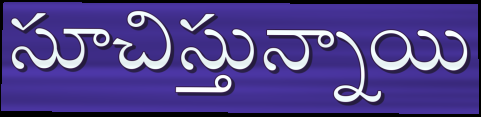
సూచిస్తున్నాయి